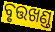
ବୃତ୍ତଖଣ୍ଡ